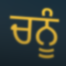
ਚਨੂੰ